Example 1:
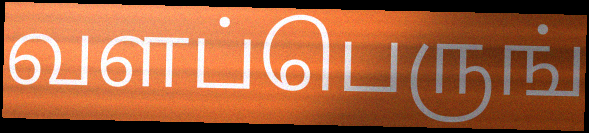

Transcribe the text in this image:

வளப்பெருங்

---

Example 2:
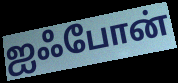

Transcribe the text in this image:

ஐஃபோன்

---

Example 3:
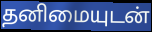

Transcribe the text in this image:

தனிமையுடன்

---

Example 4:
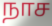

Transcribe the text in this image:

நாச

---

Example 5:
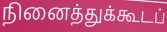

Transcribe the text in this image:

நினைத்துக்கூடப்